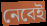
নেবেই